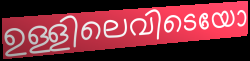
ഉള്ളിലെവിടെയോ